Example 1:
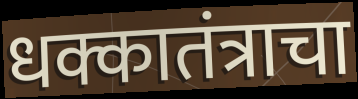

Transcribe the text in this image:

धक्कातंत्राचा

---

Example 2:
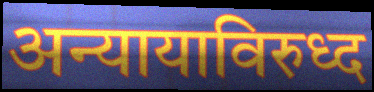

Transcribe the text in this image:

अन्यायाविरुध्द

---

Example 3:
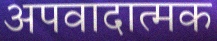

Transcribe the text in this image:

अपवादात्मक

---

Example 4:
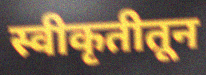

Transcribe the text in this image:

स्वीकृतीतून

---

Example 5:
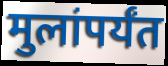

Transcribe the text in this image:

मुलांपर्यंत